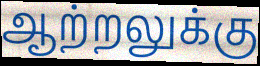
ஆற்றலுக்கு